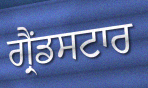
ਗ੍ਰੈਂਡਸਟਾਰ